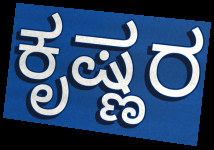
ಕೃಷ್ಣರ